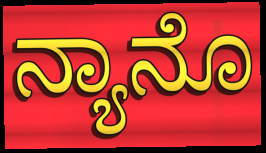
ನ್ಯಾನೊ